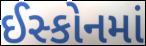
ઈસ્કોનમાં